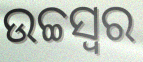
ଉଚ୍ଚସ୍ବର